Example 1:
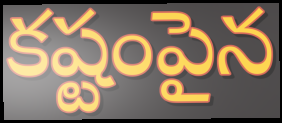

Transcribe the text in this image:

కష్టంపైన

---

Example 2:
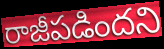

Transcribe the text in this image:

రాజీపడిందని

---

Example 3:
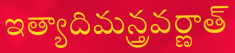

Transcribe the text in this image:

ఇత్యాదిమన్త్రవర్ణాత్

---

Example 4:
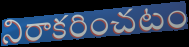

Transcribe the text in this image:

నిరాకరించటం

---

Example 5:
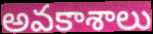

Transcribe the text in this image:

అవకాశాలు